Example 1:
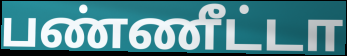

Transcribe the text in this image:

பண்ணீட்டா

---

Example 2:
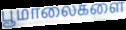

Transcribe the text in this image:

பூமாலைகளை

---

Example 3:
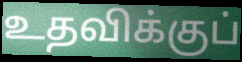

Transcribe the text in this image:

உதவிக்குப்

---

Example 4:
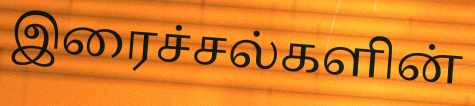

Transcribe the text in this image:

இரைச்சல்களின்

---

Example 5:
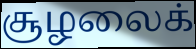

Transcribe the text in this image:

சூழலைக்